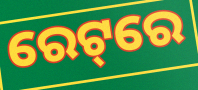
ରେଟ୍‌ରେ